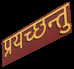
प्रयच्छन्तु